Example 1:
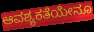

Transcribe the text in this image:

ಆವಶ್ಯಕತೆಯೇನೂ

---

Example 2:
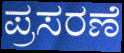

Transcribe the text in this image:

ಪ್ರಸರಣೆ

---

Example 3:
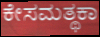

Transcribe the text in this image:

ಕೇಸಮತ್ಥಕಾ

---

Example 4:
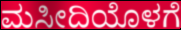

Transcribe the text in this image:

ಮಸೀದಿಯೊಳಗೆ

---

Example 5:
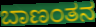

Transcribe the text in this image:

ಬಾಣಂತನ